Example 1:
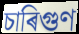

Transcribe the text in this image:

চাৰিগুণ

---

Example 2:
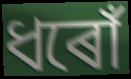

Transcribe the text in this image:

ধৰোঁ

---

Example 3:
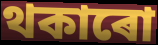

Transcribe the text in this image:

থকাৰো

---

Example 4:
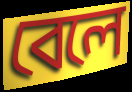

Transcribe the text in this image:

বেলে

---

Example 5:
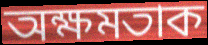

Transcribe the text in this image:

অক্ষমতাক